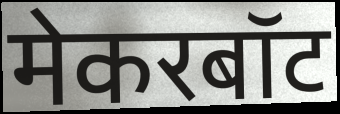
मेकरबॉट